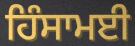
ਹਿੰਸਾਮਈ